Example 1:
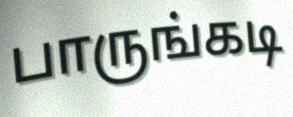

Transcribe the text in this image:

பாருங்கடி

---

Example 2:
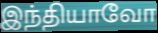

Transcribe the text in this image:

இந்தியாவோ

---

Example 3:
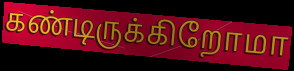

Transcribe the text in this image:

கண்டிருக்கிறோமா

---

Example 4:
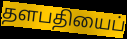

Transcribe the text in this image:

தளபதியைப்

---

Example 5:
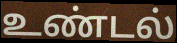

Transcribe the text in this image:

உண்டல்